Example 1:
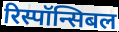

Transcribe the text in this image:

रिस्पॉन्सिबल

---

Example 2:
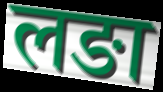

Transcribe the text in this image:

लङा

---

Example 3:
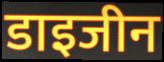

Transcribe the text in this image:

डाइजीन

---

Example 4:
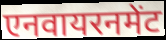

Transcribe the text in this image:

एनवायरनमेंट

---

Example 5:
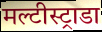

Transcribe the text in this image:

मल्टीस्ट्राडा